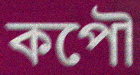
কপৌ